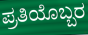
ಪ್ರತಿಯೊಬ್ಬರ